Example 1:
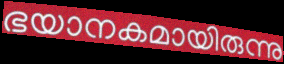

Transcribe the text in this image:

ഭയാനകമായിരുന്നു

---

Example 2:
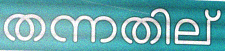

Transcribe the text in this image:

തന്നതില്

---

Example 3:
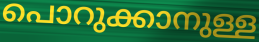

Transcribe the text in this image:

പൊറുക്കാനുള്ള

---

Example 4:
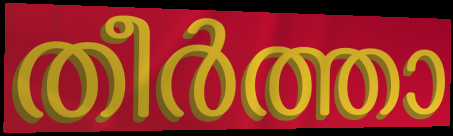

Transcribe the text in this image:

തീർത്താ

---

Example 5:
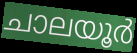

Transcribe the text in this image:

ചാലയൂർ